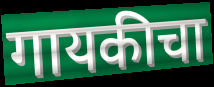
गायकीचा